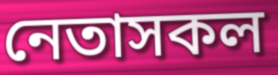
নেতাসকল